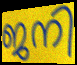
ജനി